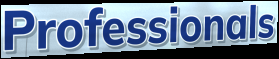
Professionals